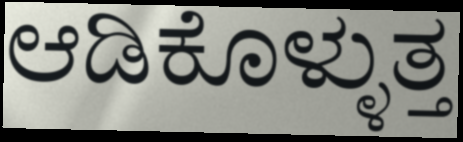
ಆಡಿಕೊಳ್ಳುತ್ತ